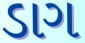
ડાગ